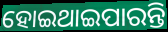
ହୋଇଥାଇପାରନ୍ତି